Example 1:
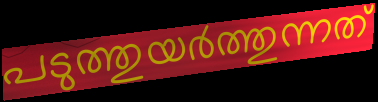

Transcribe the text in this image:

പടുത്തുയർത്തുന്നത്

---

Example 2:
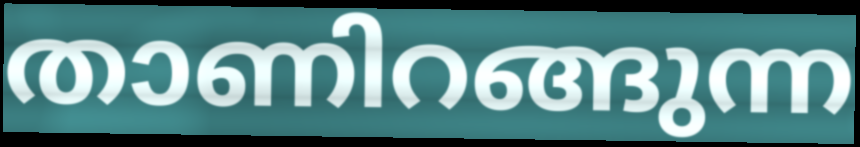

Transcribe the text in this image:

താണിറങ്ങുന്ന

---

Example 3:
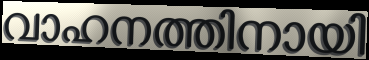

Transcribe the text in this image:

വാഹനത്തിനായി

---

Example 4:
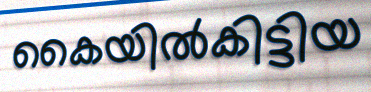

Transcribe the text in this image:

കൈയിൽകിട്ടിയ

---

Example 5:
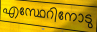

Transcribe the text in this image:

എസ്ഥേറിനോടു